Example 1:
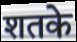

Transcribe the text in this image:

शतके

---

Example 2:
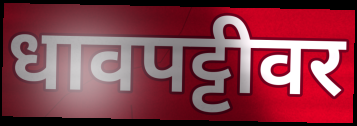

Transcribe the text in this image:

धावपट्टीवर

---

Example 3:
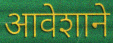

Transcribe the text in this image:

आवेशाने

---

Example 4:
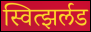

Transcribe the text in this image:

स्वित्झर्लड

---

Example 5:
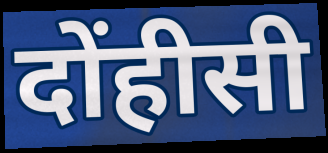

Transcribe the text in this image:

दोंहीसी